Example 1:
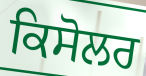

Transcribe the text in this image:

ਕਿਸੋਲਰ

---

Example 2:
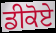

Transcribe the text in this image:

ਡੀਕੋਏ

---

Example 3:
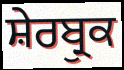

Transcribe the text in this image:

ਸ਼ੇਰਬ੍ਰੁਕ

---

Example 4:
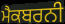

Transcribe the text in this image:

ਮੈਕਬਰਨੀ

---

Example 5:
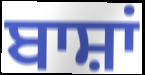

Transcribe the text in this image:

ਬਾਸ਼ਾਂ